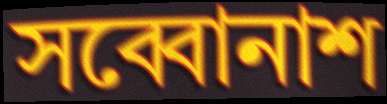
সব্বোনাশ